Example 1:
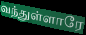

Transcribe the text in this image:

வந்துள்ளாரே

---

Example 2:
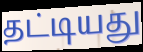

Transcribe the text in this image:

தட்டியது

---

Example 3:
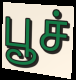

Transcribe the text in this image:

பூச்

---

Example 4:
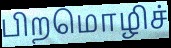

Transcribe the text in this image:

பிறமொழிச்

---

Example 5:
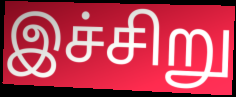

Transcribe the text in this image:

இச்சிறு